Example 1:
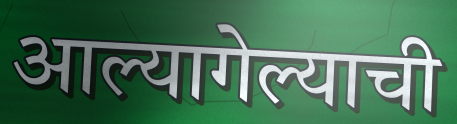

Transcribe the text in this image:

आल्यागेल्याची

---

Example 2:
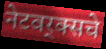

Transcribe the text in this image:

नेटवर्क्सचे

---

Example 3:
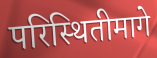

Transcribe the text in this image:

परिस्थितीमागे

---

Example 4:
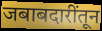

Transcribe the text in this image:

जबाबदारींतून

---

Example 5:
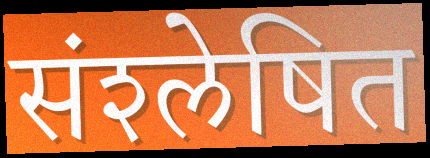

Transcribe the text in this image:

संश्लेषित